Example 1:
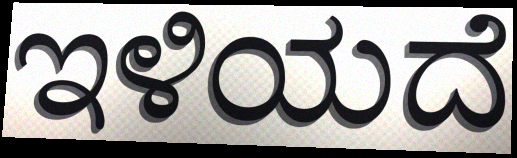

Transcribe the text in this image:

ಇಳಿಯದೆ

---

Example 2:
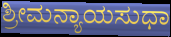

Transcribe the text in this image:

ಶ್ರೀಮನ್ಯಾಯಸುಧಾ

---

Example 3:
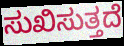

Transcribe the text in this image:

ಸುಖಿಸುತ್ತದೆ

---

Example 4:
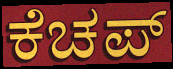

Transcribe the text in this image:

ಕೆಚಪ್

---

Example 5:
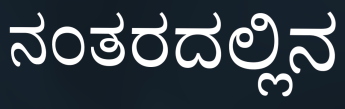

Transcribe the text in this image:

ನಂತರದಲ್ಲಿನ